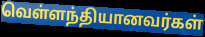
வெள்ளந்தியானவர்கள்